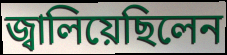
জ্বালিয়েছিলেন